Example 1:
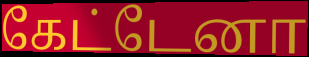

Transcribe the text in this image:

கேட்டேனா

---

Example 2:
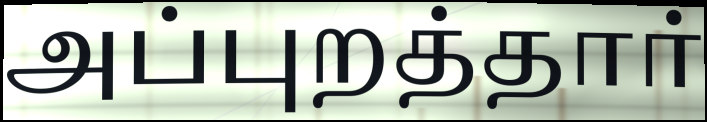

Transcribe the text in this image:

அப்புறத்தார்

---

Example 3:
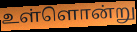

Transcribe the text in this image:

உள்ளொன்று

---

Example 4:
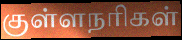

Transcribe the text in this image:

குள்ளநரிகள்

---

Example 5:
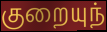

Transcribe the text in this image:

குறையுந்